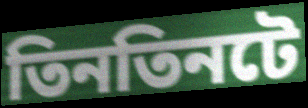
তিনতিনটে